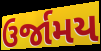
ઉર્જામય